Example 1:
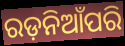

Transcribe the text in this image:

ରଡ଼ନିଆଁପରି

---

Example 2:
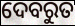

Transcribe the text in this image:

ଦେବରୁତ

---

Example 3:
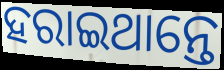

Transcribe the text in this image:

ହରାଇଥାନ୍ତେ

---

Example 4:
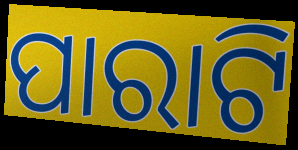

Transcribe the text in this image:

ପାରାଟି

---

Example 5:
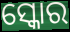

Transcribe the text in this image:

ସ୍କୋର